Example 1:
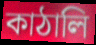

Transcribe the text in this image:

কাঠালি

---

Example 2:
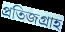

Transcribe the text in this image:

প্রতিজগ্রাহ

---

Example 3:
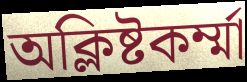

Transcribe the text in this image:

অক্লিষ্টকর্ম্মা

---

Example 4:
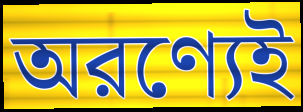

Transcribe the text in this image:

অরণ্যেই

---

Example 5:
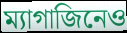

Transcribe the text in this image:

ম্যাগাজিনেও